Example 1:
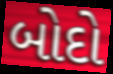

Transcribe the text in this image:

બોદો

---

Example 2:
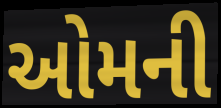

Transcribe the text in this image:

ઓમની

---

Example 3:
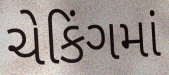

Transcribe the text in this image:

ચેકિંગમાં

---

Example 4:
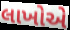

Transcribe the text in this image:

લાખોએ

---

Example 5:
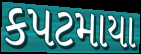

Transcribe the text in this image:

કપટમાયા